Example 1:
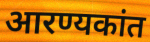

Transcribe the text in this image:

आरण्यकांत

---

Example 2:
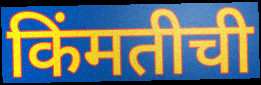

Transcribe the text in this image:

किंमतीची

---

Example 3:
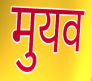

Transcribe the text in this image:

मुयव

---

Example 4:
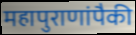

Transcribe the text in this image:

महापुराणांपैकी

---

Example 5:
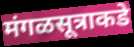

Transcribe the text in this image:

मंगळसूत्राकडे